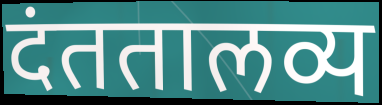
दंततालव्य